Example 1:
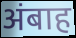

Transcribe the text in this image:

अंबाह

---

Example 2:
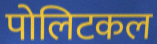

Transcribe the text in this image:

पोलिटकल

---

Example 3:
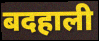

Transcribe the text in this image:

बदहाली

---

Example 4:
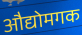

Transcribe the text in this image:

औद्योमगक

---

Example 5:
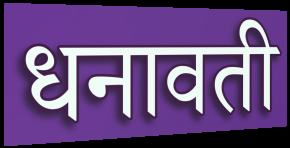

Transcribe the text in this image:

धनावती